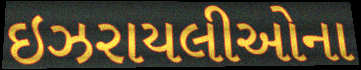
ઇઝરાયલીઓના